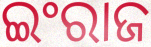
ଇଂରାଜ